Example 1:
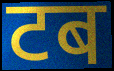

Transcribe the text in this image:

टब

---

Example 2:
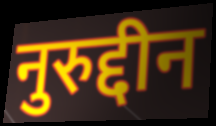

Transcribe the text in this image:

नुरुद्दीन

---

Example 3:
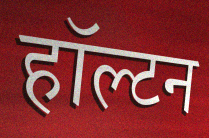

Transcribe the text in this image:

हॉल्टन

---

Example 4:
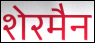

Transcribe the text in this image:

शेरमैन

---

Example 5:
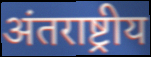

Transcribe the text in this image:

अंतराष्ट्रीय